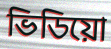
ভিডিয়ো